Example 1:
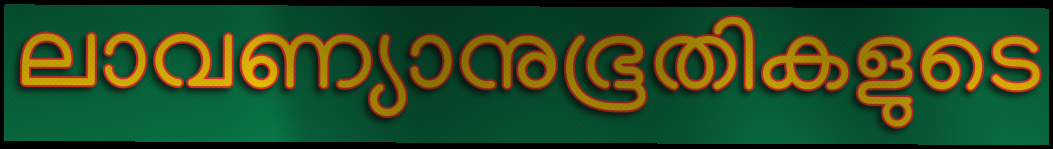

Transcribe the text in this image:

ലാവണ്യാനുഭൂതികളുടെ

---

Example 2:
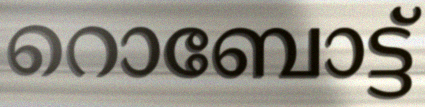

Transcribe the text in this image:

റൊബോട്ട്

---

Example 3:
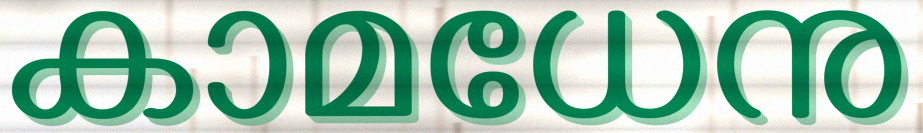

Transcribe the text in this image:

കാമധേനു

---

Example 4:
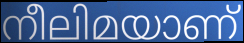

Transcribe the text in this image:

നീലിമയാണ്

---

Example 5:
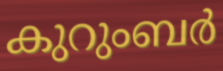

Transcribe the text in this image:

കുറുംബർ